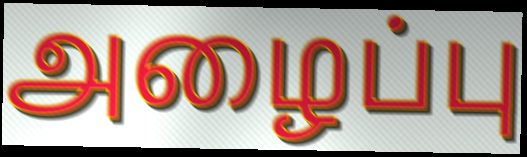
அழைப்பு